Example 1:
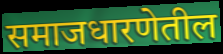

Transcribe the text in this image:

समाजधारणेतील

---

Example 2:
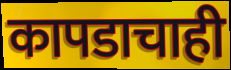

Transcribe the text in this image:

कापडाचाही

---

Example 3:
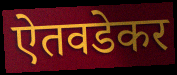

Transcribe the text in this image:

ऐतवडेकर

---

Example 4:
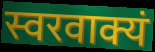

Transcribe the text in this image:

स्वरवाक्यं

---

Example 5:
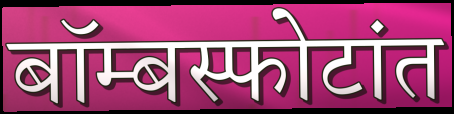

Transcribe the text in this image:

बॉम्बस्फोटांत